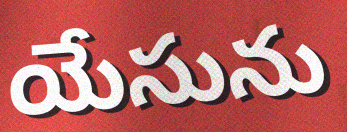
యేసును